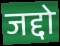
जद्दो